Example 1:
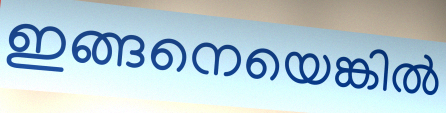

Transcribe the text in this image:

ഇങ്ങനെയെങ്കിൽ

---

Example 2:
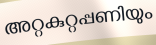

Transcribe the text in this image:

അറ്റകുറ്റപ്പണിയും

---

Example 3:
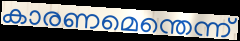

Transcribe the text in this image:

കാരണമെന്തെന്ന്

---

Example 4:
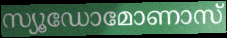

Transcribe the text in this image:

സ്യൂഡോമോണാസ്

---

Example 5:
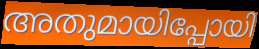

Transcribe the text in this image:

അതുമായിപ്പോയി